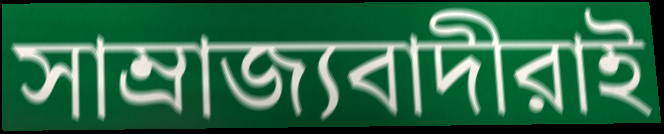
সাম্রাজ্যবাদীরাই